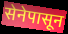
सेनेपासून